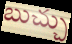
బుచ్చు